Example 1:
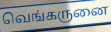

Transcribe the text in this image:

வெங்கருனை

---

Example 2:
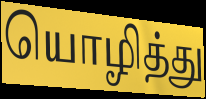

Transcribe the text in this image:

யொழித்து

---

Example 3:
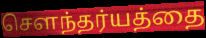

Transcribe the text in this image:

செளந்தர்யத்தை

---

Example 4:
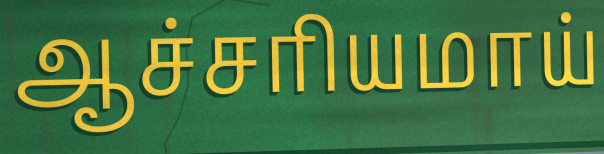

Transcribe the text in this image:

ஆச்சரியமாய்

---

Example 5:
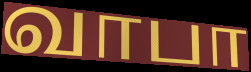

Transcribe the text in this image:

வாபா